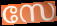
സേ